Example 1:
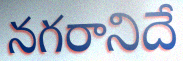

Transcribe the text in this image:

నగరానిదే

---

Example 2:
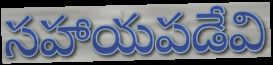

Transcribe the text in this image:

సహాయపడేవి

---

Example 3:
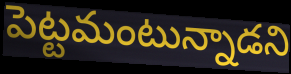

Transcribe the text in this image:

పెట్టమంటున్నాడని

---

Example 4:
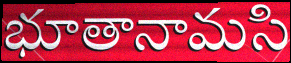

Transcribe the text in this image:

భూతానామసి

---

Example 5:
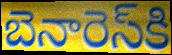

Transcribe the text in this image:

బెనారెస్‌కి